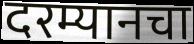
दरम्यानचा